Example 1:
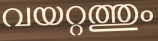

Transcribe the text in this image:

വയറ്റത്തും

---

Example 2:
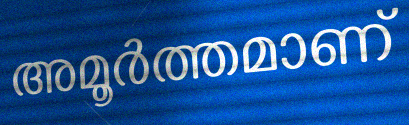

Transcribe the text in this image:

അമൂർത്തമാണ്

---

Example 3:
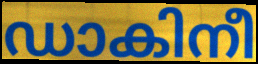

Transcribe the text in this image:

ഡാകിനീ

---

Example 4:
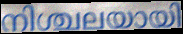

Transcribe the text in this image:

നിശ്ചലയായി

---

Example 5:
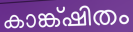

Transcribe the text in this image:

കാങ്ക്ഷിതം